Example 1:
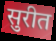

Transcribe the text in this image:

सुरीत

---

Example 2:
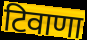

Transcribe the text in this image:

टिवाणा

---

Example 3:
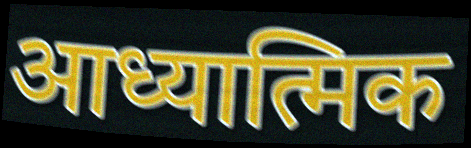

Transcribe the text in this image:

आध्यात्मिक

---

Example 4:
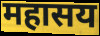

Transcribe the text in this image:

महासय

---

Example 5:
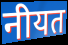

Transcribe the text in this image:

नीयत